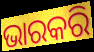
ଭାରକରି